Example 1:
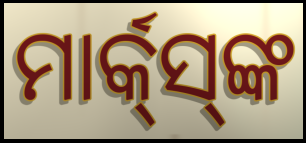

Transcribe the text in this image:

ମାର୍କ୍‌ସ୍‌ଙ୍କ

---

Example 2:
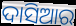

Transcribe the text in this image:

ଦାସିଆର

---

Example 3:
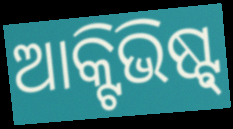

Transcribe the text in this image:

ଆକ୍ଟିଭିଷ୍ଟ୍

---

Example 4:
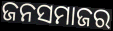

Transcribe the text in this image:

ଜନସମାଜର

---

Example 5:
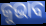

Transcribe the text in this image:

କୁଭାବ